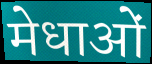
मेधाओं